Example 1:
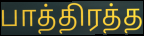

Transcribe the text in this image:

பாத்திரத்த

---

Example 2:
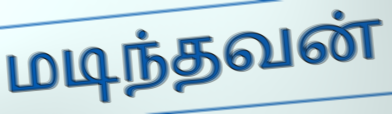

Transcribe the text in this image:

மடிந்தவன்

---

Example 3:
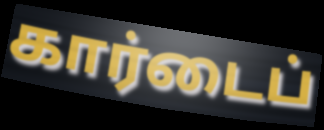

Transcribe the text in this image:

கார்டைப்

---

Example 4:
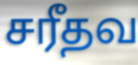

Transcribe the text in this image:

சரீதவ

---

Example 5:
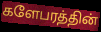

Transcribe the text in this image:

களேபரத்தின்